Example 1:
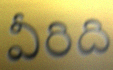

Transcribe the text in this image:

వీరిది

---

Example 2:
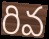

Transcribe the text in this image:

రివ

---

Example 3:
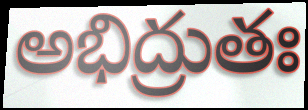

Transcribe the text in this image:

అభిద్రుతః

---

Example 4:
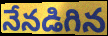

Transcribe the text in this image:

నేనడిగిన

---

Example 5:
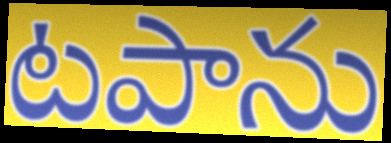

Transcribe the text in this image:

టపాను